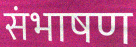
संभाषण